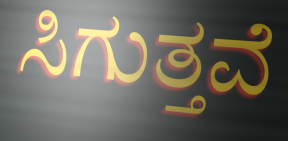
ಸಿಗುತ್ತವೆ